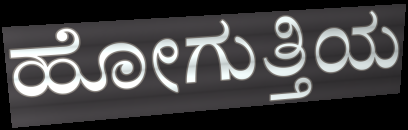
ಹೋಗುತ್ತಿಯ